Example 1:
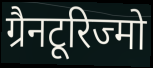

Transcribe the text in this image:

ग्रैनटूरिज्मो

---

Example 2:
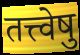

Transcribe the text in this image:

तत्त्वेषु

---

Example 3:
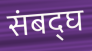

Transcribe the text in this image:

संबद्घ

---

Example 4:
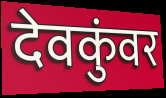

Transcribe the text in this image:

देवकुंवर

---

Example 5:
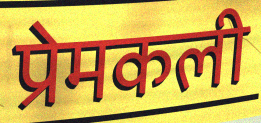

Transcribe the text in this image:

प्रेमकली